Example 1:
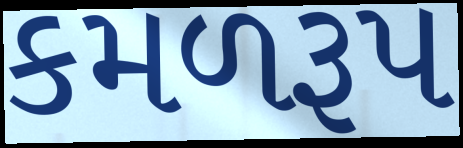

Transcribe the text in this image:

કમળરૂપ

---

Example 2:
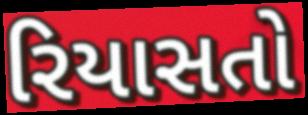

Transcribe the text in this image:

રિયાસતો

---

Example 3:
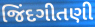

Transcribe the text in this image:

જિંદગીતણી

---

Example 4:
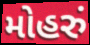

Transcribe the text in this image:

મોહરું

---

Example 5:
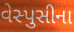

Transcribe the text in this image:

વેસ્પુસીના